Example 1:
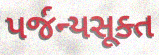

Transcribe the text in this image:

પર્જન્યસૂક્ત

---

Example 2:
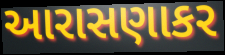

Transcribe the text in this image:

આરાસણાકર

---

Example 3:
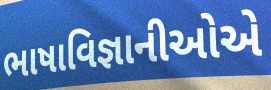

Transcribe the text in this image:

ભાષાવિજ્ઞાનીઓએ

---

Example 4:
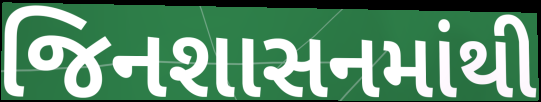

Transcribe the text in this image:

જિનશાસનમાંથી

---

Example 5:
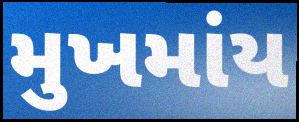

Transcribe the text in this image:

મુખમાંય